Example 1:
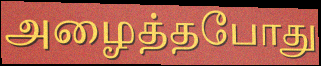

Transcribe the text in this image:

அழைத்தபோது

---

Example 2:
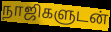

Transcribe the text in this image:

நாஜிகளுடன்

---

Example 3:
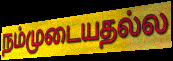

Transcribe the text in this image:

நம்முடையதல்ல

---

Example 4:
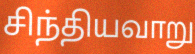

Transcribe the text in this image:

சிந்தியவாறு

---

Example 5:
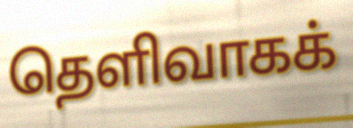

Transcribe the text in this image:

தெளிவாகக்